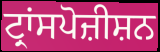
ਟ੍ਰਾਂਸਪੋਜ਼ੀਸ਼ਨ